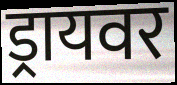
ड्रायवर